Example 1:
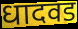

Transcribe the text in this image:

धादवड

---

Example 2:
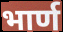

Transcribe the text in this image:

भार्ण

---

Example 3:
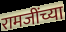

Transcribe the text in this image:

रामजींच्या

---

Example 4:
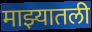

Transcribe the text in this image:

माझ्यातली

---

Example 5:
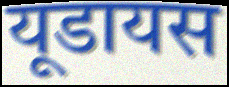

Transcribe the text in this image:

यूडायस